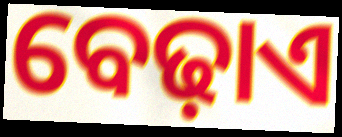
ବେଢ଼ାଏ